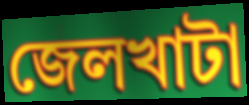
জেলখাটা